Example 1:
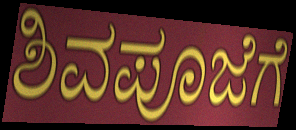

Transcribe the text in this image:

ಶಿವಪೂಜೆಗೆ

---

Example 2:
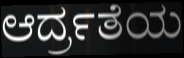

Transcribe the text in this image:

ಆರ್ದ್ರತೆಯ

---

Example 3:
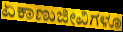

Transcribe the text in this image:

ಏಕಾಣುಜೀವಿಗಳೂ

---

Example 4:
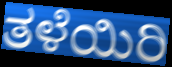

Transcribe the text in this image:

ತಳೆಯಿರಿ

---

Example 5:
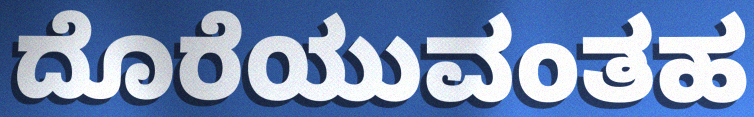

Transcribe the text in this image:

ದೊರೆಯುವಂತಹ